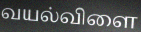
வயல்விளை